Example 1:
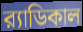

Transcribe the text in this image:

র‍্যাডিকাল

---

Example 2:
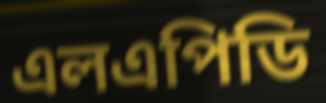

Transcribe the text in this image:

এলএপিডি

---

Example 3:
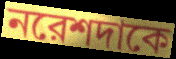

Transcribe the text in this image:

নরেশদাকে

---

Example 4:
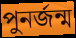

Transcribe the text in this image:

পুনর্জন্ম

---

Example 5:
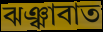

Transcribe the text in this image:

ঝঞ্ঝাবাত